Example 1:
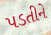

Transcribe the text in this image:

પડતીને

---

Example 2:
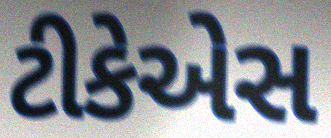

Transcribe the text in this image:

ટીકેએસ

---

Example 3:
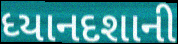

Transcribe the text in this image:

ધ્યાનદશાની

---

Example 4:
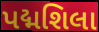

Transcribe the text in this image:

પદ્મશિલા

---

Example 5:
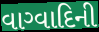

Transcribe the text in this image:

વાગ્વાદિની